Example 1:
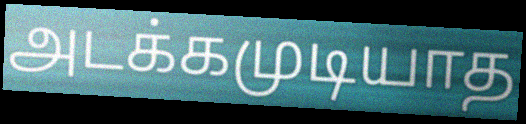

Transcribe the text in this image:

அடக்கமுடியாத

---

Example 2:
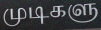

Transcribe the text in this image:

முடிகளு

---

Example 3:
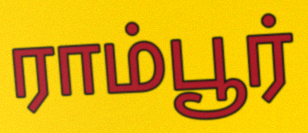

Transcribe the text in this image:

ராம்பூர்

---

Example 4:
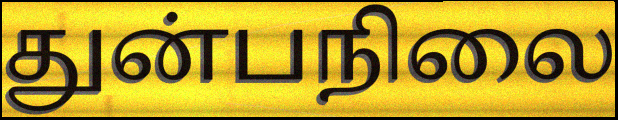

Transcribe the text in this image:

துன்பநிலை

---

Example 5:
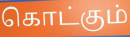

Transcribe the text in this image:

கொட்கும்